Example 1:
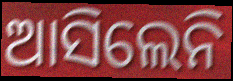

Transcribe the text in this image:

ଆସିଲେନି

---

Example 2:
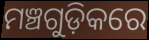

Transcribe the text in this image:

ମଞ୍ଚଗୁଡ଼ିକରେ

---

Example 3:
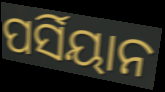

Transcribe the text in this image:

ପର୍ସିୟାନ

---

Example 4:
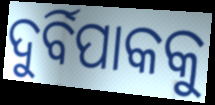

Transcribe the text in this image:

ଦୁର୍ବିପାକକୁ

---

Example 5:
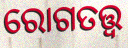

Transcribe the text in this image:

ରୋଗତତ୍ତ୍ୱ